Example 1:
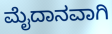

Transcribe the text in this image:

ಮೈದಾನವಾಗಿ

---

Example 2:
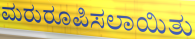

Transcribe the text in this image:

ಮರುರೂಪಿಸಲಾಯಿತು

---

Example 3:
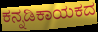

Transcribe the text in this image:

ಕನ್ನಡಿಕಾಯಕದ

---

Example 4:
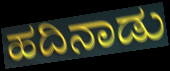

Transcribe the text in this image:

ಹದಿನಾಡು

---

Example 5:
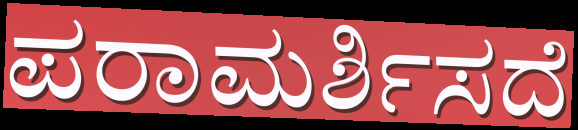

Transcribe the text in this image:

ಪರಾಮರ್ಶಿಸದೆ